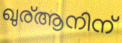
ഖുര്ആനിന്